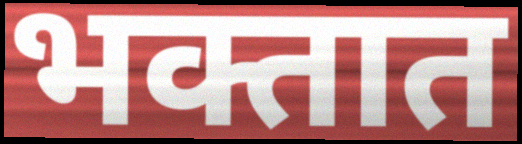
भक्तात